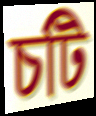
চটি